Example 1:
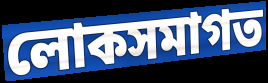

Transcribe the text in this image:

লোকসমাগত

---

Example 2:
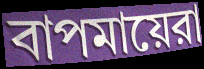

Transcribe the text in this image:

বাপমায়েরা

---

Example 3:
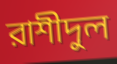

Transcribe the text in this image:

রাশীদুল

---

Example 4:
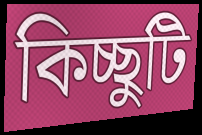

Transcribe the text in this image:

কিচ্ছুটি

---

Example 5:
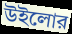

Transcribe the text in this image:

উইলোর